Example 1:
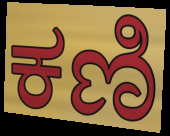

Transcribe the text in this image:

ಕಣಿ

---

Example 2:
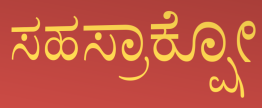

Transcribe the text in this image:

ಸಹಸ್ರಾಕ್ಷೋ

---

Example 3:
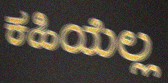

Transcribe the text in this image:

ಕಹಿಯೆಲ್ಲ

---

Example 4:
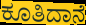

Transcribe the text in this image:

ಕೂತಿದಾನೆ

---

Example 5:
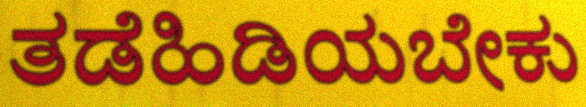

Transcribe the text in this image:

ತಡೆಹಿಡಿಯಬೇಕು